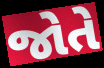
જોતે